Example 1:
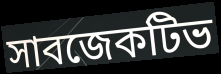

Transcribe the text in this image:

সাবজেকটিভ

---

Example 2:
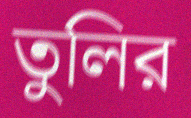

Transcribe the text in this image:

তুলির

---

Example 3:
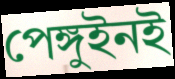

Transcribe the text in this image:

পেঙ্গুইনই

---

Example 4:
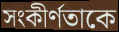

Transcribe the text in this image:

সংকীর্ণতাকে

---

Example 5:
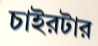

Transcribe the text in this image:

চাইরটার